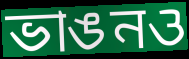
ভাঙনও